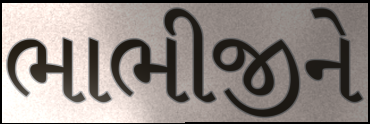
ભાભીજીને